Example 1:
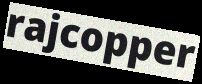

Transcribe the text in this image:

rajcopper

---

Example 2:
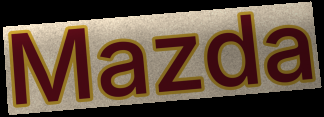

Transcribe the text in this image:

Mazda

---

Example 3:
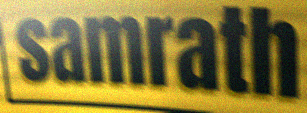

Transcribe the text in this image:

samrath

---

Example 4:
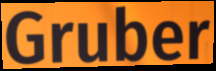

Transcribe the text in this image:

Gruber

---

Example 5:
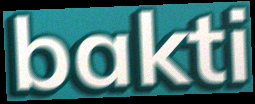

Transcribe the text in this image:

bakti